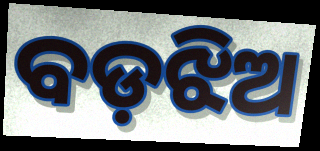
ବଡ଼ଝିଅ